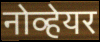
नोव्हेयर